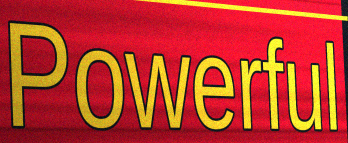
Powerful